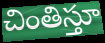
చింతిస్తూ